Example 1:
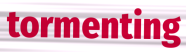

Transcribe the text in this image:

tormenting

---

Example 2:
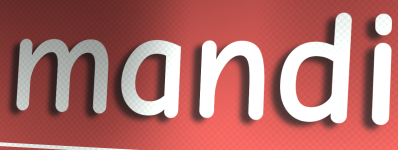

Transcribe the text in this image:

mandi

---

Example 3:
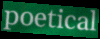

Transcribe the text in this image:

poetical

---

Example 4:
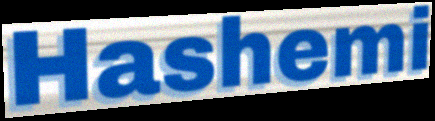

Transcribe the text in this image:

Hashemi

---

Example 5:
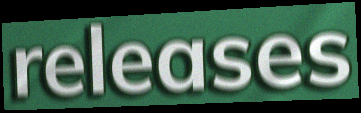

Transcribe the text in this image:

releases